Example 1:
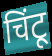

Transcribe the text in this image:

चिंटू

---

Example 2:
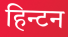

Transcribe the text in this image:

हिन्टन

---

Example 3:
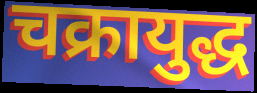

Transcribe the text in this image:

चक्रायुद्ध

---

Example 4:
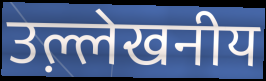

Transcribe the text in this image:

उल्ल़ेखनीय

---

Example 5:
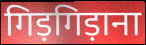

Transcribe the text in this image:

गिड़गिड़ाना